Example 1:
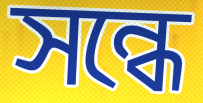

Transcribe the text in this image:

সন্ধে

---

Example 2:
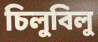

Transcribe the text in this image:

চিলুবিলু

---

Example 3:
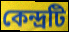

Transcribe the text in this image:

কেন্দ্রটি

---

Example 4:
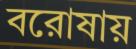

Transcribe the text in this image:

বরোষায়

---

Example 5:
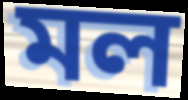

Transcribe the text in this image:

মল